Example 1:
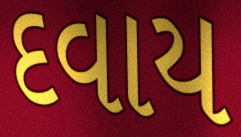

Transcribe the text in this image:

દવાય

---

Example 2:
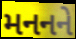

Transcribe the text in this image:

મનનને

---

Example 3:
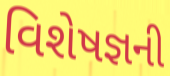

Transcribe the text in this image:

વિશેષજ્ઞની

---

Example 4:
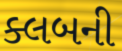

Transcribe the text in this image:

ક્લબની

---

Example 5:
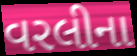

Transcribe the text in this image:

વરલીના